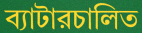
ব্যাটারচালিত